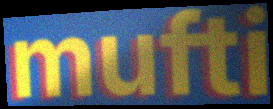
mufti